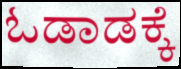
ಓಡಾಡಕ್ಕೆ